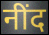
नींद